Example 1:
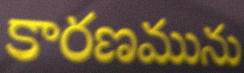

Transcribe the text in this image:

కారణమును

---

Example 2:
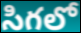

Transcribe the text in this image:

సిగలో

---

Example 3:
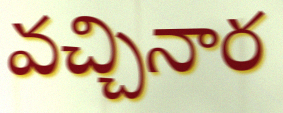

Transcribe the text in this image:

వచ్చినార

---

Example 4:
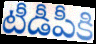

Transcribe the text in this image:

టీడీపీకి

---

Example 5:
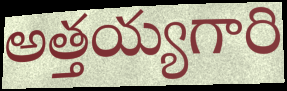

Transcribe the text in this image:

అత్తయ్యగారి